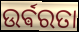
ଉର୍ଵରତା